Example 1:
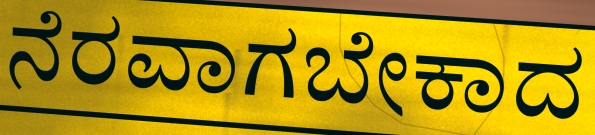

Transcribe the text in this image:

ನೆರವಾಗಬೇಕಾದ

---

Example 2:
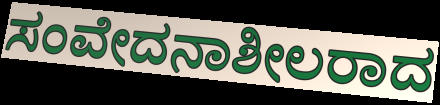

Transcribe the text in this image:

ಸಂವೇದನಾಶೀಲರಾದ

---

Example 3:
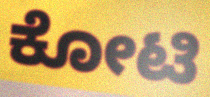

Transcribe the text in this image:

ಕೋಟಿ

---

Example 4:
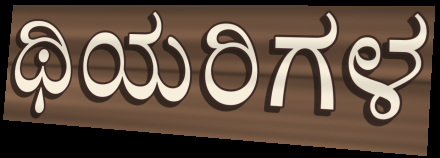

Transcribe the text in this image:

ಥಿಯರಿಗಳ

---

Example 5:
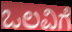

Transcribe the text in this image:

ಒಲವಿಗೆ